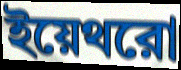
ইয়েথরো